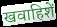
खवाहिशें